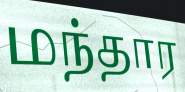
மந்தார